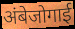
अंबेजोगाई